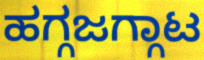
ಹಗ್ಗಜಗ್ಗಾಟ